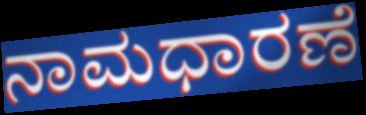
ನಾಮಧಾರಣೆ